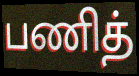
பணித்